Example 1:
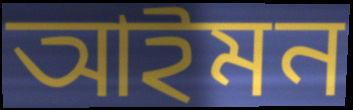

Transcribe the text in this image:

আইমন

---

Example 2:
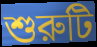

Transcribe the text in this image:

শুরুটি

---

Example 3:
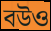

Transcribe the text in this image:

বউও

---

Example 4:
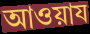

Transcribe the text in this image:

আওয়ায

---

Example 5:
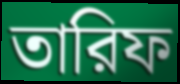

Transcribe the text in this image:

তারিফ